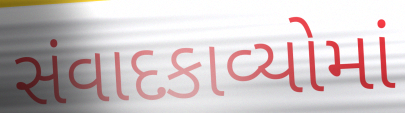
સંવાદકાવ્યોમાં